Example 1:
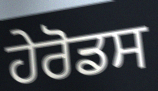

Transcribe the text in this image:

ਹੇਰੋਡਸ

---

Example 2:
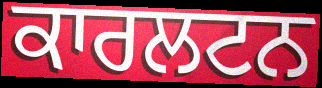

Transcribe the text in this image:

ਕਾਰਲਟਨ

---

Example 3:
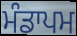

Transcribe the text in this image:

ਮੰਡਾਪਮ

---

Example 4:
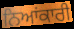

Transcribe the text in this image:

ਨਿਆਂਕਾਰੀ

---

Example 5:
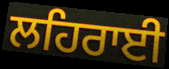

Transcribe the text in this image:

ਲਹਿਰਾਈ